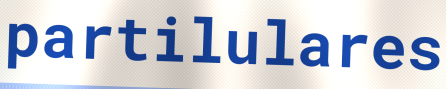
partilulares